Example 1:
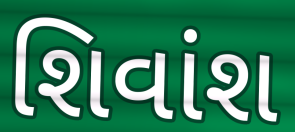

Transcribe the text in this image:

શિવાંશ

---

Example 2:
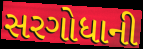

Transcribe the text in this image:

સરગોધાની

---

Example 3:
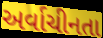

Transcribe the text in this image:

અર્વાચીનતા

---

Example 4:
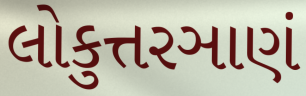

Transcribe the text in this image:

લોકુત્તરઞાણં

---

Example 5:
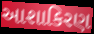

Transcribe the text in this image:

આશાકિરણ